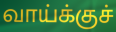
வாய்க்குச்